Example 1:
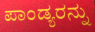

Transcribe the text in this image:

ಪಾಂಡ್ಯರನ್ನು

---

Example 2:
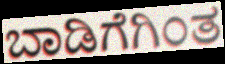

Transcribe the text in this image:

ಬಾಡಿಗೆಗಿಂತ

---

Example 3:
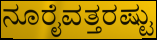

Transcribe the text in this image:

ನೂರೈವತ್ತರಷ್ಟು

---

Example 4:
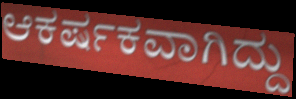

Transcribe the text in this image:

ಆಕರ್ಷಕವಾಗಿದ್ದು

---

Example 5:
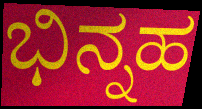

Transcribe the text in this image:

ಭಿನ್ನಹ